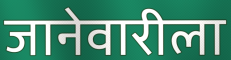
जानेवारीला